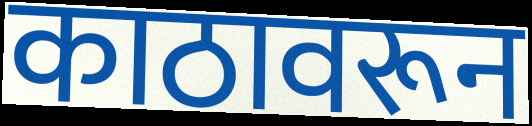
काठावरून